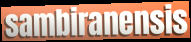
sambiranensis